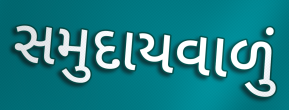
સમુદાયવાળું